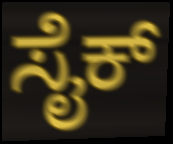
ಸೈಕ್